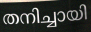
തനിച്ചായി